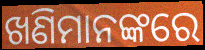
ଖଣିମାନଙ୍କରେ